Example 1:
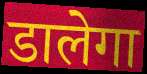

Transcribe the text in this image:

डालेगा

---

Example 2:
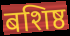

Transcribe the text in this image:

बशिष्ठ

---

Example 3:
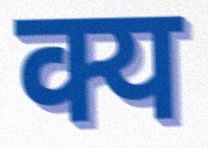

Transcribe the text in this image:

क्य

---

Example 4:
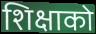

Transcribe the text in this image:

शिक्षाको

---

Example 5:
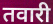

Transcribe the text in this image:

तवारी